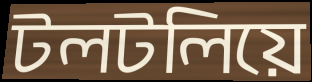
টলটলিয়ে